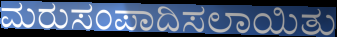
ಮರುಸಂಪಾದಿಸಲಾಯಿತು